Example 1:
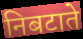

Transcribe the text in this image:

निबटाते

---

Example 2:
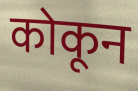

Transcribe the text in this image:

कोकून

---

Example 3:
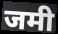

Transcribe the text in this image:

जमी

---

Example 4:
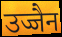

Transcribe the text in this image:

उज्जैन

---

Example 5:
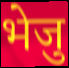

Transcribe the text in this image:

भेजु